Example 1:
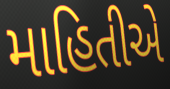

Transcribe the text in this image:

માહિતીએ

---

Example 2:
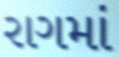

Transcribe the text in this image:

રાગમાં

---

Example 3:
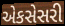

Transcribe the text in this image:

એકસેસરી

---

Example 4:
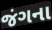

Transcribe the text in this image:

જંગના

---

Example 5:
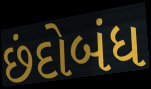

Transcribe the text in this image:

છંદોબંધ